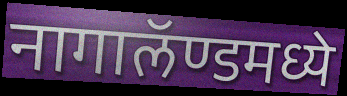
नागालॅण्डमध्ये